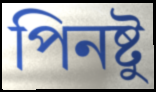
পিনষ্টু